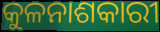
କୁଳନାଶକାରୀ